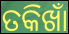
ତକିଖାଁ